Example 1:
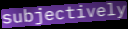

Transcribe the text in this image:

subjectively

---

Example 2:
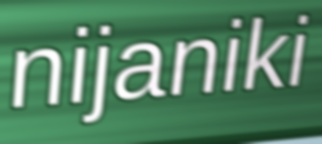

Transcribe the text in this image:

nijaniki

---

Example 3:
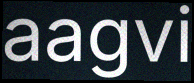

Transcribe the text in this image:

aagvi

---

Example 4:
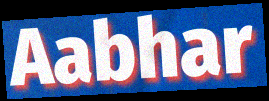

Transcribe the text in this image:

Aabhar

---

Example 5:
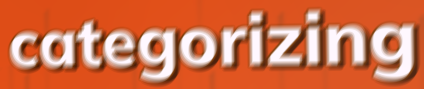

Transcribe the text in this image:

categorizing